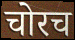
चोरच